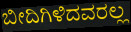
ಬೀದಿಗಿಳಿದವರಲ್ಲ